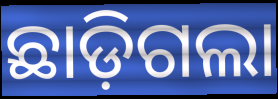
ଛାଡ଼ିଗଲା